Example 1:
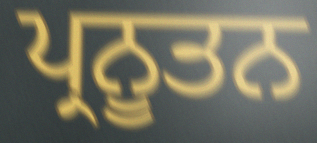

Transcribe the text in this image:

ਪ੍ਰਨੂਤਨ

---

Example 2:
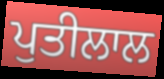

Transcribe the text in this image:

ਪੁਤੀਲਾਲ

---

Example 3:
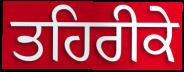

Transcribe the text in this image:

ਤਹਿਰੀਕੇ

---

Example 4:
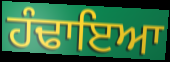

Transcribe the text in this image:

ਹੰਢਾਇਆ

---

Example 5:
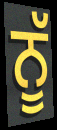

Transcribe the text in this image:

ਨੂੱ